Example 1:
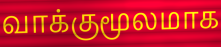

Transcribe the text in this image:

வாக்குமூலமாக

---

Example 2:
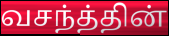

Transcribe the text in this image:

வசந்த்தின்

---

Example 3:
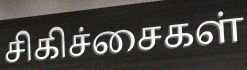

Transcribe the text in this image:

சிகிச்சைகள்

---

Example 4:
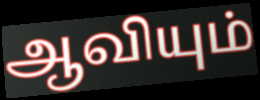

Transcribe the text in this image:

ஆவியும்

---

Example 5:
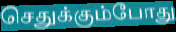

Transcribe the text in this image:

செதுக்கும்போது